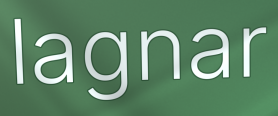
lagnar